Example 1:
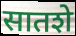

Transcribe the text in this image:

सातशे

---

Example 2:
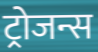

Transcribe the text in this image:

ट्रोजन्स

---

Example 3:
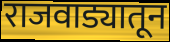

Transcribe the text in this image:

राजवाड्यातून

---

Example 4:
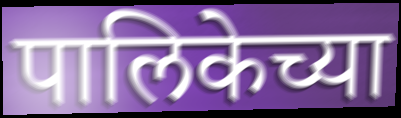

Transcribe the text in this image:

पालिकेच्या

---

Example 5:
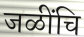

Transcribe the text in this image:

जळींचि